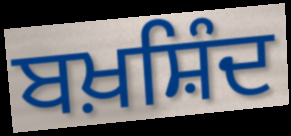
ਬਖ਼ਸ਼ਿੰਦ